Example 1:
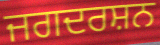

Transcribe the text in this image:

ਜਗਦਰਸ਼ਨ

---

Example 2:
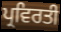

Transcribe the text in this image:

ਪ੍ਰਵਿਰਤੀ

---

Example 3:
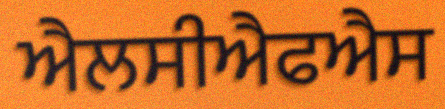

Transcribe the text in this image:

ਐਲਸੀਐਫਐਸ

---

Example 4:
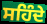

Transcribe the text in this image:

ਸਹਿੰਦੇ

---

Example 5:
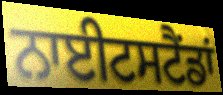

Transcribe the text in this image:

ਨਾਈਟਸਟੈਂਡਾਂ